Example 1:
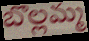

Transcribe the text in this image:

బొల్లమ్మ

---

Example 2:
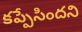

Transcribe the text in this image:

కప్పేసిందని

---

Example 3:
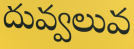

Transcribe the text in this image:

దువ్వలువ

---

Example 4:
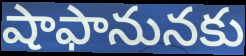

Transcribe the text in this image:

షాఫానునకు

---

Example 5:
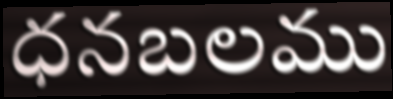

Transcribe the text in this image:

ధనబలము